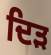
ਦਿੜ